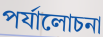
পর্যালোচনা